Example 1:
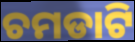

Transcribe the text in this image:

ଚମଡାଟି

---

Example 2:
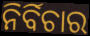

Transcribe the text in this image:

ନିର୍ବିଚାର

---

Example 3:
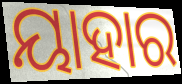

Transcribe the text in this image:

ୟାହାର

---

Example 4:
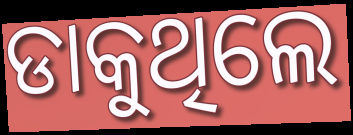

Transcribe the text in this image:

ଡାକୁଥିଲେ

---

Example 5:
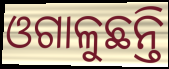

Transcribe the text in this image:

ଓଗାଳୁଛନ୍ତି